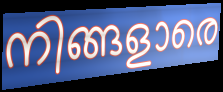
നിങ്ങളാരെ